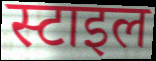
स्टाइल